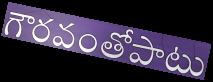
గౌరవంతోపాటు